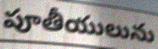
పూతీయులును